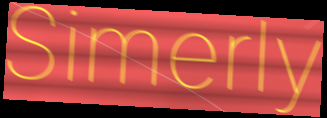
Simerly